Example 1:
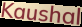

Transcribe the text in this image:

Kaushal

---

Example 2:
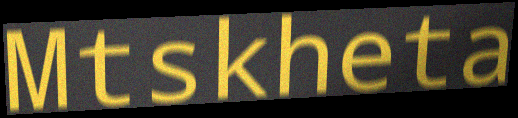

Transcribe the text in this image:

Mtskheta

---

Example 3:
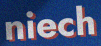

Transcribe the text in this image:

niech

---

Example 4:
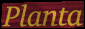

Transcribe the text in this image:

Planta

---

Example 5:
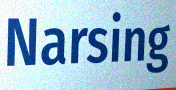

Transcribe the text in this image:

Narsing